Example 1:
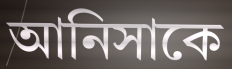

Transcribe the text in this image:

আনিসাকে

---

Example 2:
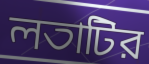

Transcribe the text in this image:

লতাটির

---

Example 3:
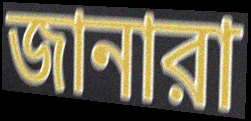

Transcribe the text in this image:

জানারা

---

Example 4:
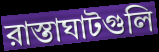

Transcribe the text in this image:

রাস্তাঘাটগুলি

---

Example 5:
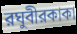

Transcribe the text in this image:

রঘুবীরকাকা